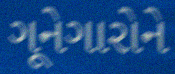
ગૂનેગારોને